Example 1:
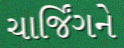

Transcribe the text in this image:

ચાર્જિંગને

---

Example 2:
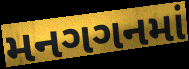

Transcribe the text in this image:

મનગગનમાં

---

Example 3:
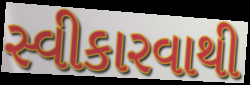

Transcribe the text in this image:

સ્વીકારવાથી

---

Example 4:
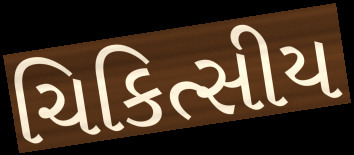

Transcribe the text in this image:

ચિકિત્સીય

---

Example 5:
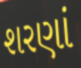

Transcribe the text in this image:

શરણાં